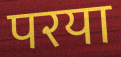
परया